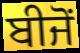
ਬੀਜੋਂ